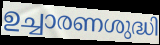
ഉച്ചാരണശുദ്ധി